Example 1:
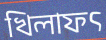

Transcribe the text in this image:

খিলাফৎ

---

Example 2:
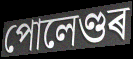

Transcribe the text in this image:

পোলেণ্ডৰ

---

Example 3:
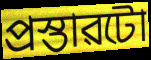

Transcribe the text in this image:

প্ৰস্তাৱটো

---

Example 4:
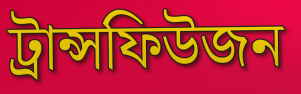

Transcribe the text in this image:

ট্ৰান্সফিউজন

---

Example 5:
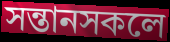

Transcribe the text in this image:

সন্তানসকলে